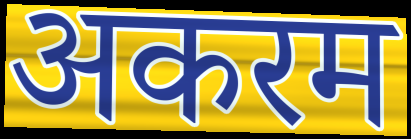
अकरम